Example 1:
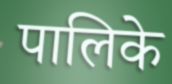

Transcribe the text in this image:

पालिके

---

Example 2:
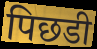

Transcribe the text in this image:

पिछडी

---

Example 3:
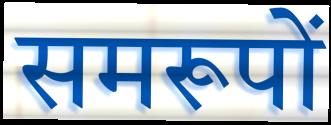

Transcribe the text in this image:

समरूपों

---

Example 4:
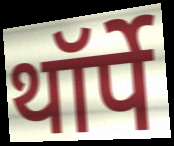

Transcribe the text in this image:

थॉर्पे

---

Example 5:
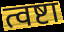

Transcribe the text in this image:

त्वष्टा